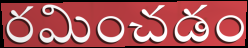
రమించడం